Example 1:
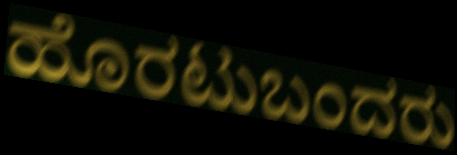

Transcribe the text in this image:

ಹೊರಟುಬಂದರು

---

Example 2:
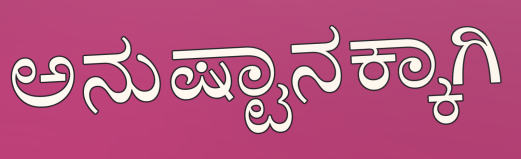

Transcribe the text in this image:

ಅನುಷ್ಟಾನಕ್ಕಾಗಿ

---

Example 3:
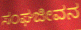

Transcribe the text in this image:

ಸಂಘಜೀವನ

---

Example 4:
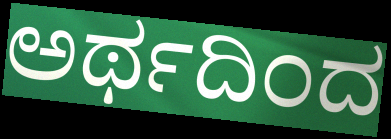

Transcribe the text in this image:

ಅರ್ಥದಿಂದ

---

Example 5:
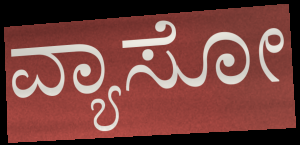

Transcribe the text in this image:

ವ್ಯಾಸೋ